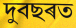
দুবছৰত